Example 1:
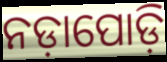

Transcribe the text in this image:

ନଡ଼ାପୋଡ଼ି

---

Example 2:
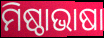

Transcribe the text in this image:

ମିଷ୍ଠାଭାଷା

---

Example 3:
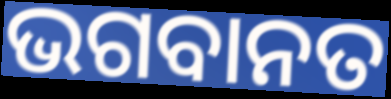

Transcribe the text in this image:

ଭଗବାନତ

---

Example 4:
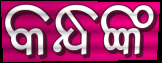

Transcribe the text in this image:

କନ୍ଧଙ୍କ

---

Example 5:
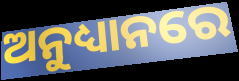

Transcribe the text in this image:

ଅନୁଧ୍ୟାନରେ